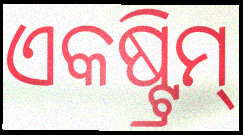
ଏକଷ୍ଟ୍ରିମ୍